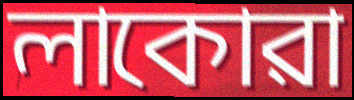
লাকোৱা